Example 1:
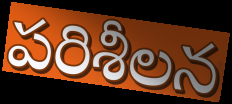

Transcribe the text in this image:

పరిశీలన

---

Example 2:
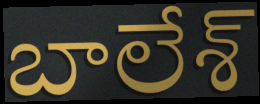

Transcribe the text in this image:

బాలేశ్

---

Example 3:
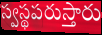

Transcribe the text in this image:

స్వస్థపరుస్తారు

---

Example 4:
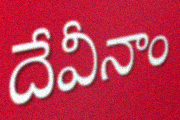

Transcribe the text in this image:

దేవీనాం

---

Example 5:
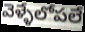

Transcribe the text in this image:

వెళ్ళేలోపలే